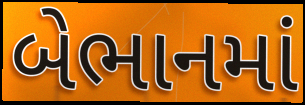
બેભાનમાં